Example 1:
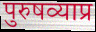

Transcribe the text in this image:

पुरुषव्याप्र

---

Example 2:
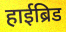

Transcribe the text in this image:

हाईब्रिड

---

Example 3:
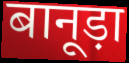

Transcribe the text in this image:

बानूड़ा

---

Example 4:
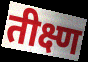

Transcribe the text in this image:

तीक्ष्ण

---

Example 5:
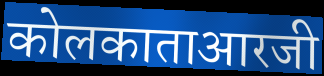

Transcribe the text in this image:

कोलकाताआरजी